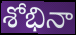
శోభినా